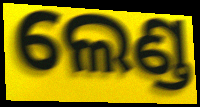
ଲେଣ୍ଡ